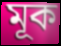
মূক